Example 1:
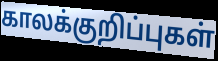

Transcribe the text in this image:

காலக்குறிப்புகள்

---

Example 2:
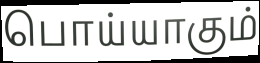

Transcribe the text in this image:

பொய்யாகும்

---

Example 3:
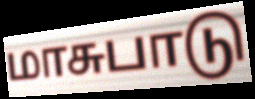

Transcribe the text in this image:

மாசுபாடு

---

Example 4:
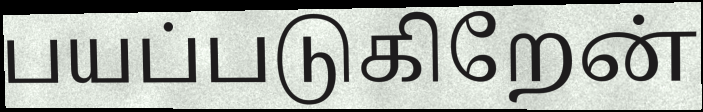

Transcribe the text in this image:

பயப்படுகிறேன்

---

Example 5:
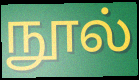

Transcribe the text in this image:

நூல்